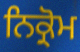
ਨਿਕ੍ਰੋਮ